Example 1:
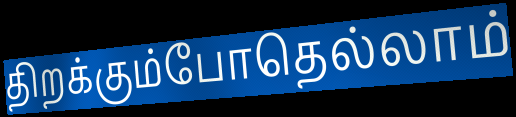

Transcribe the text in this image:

திறக்கும்போதெல்லாம்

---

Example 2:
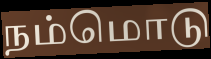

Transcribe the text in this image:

நம்மொடு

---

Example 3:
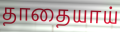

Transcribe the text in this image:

தாதையாய்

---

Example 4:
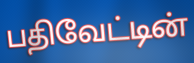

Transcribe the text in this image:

பதிவேட்டின்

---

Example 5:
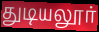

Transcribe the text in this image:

துடியலூர்